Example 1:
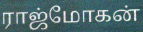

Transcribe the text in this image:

ராஜ்மோகன்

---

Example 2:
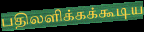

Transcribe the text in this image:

பதிலளிக்கக்கூடிய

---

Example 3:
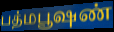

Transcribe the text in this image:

பத்மபூஷண்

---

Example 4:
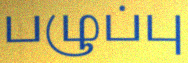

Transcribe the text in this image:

பழுப்பு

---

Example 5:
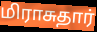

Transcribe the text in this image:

மிராசுதார்